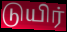
டுயிர்